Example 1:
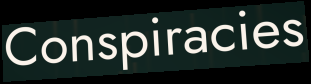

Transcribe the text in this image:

Conspiracies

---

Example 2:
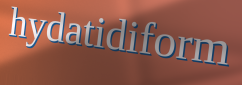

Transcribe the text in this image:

hydatidiform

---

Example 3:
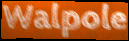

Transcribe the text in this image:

Walpole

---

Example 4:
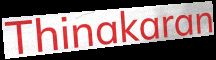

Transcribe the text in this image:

Thinakaran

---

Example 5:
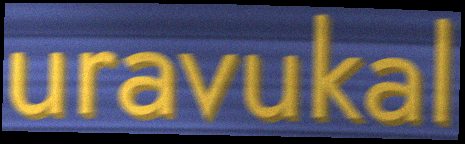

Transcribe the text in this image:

uravukal